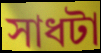
সাধটা